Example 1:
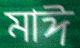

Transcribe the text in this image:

মাঈ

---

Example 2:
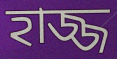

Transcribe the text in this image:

হাজ্জ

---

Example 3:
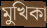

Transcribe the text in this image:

মুখিকা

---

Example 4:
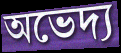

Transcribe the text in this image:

অভেদ্য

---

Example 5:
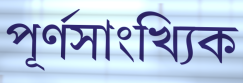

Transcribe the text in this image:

পূর্ণসাংখ্যিক